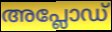
അപ്ലോഡ്